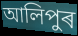
আলিপুৰ